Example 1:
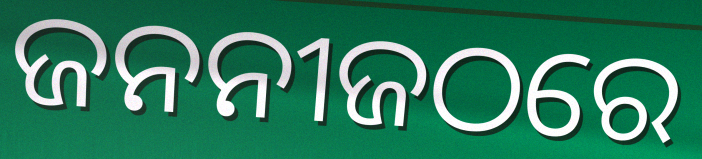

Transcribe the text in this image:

ଜନନୀଜଠରେ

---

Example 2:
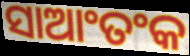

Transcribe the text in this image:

ସାଆଂତଂକ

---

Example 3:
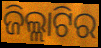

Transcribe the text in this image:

ଜିଲ୍ଲାଟିର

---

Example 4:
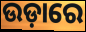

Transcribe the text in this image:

ଉଡ଼ାରେ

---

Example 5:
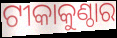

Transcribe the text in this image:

ଟୀକାକୁଣ୍ଠାର